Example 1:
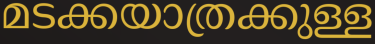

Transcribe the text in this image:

മടക്കയാത്രക്കുള്ള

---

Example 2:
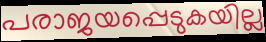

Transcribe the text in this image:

പരാജയപ്പെടുകയില്ല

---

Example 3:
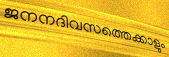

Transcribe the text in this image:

ജനനദിവസത്തെക്കാളും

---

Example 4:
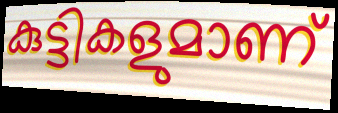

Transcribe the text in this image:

കുട്ടികളുമാണ്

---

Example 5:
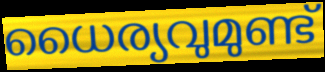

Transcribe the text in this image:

ധൈര്യവുമുണ്ട്